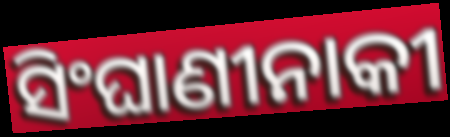
ସିଂଘାଣୀନାକୀ